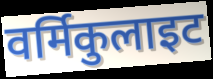
वर्मिकुलाइट